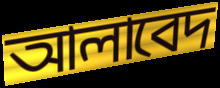
আলাবেদ